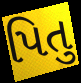
પિતુ